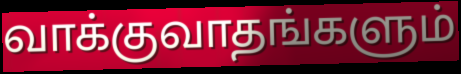
வாக்குவாதங்களும்